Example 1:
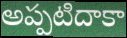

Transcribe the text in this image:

అప్పటిదాకా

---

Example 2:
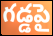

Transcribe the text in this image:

గడ్డపై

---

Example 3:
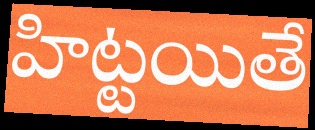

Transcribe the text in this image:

హిట్టయితే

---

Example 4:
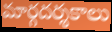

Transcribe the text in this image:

మార్గదర్శకాలు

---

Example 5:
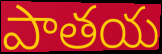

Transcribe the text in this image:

పాతయ